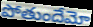
పోతుందేమో